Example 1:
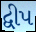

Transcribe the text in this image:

દ્વીપ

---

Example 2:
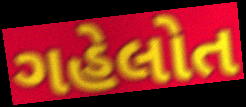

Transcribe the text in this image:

ગહેલોત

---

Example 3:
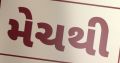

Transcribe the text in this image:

મેચથી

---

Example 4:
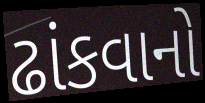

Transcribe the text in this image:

ઢાંકવાનો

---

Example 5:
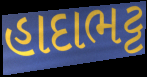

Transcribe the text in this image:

હાદાભટ્ટ